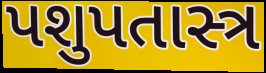
પશુપતાસ્ત્ર